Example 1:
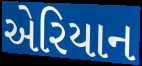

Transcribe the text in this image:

એરિયાન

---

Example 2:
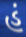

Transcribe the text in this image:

હં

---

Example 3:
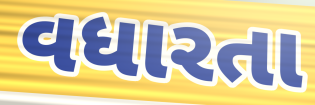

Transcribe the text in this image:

વધારતા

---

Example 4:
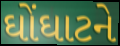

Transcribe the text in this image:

ઘોંઘાટને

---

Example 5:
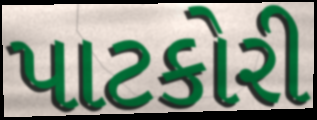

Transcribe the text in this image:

પાટકોરી